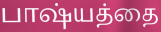
பாஷ்யத்தை